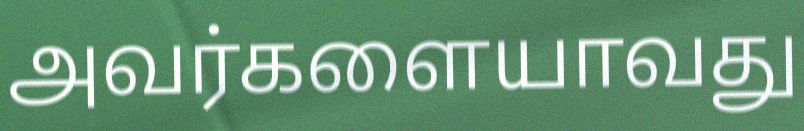
அவர்களையாவது